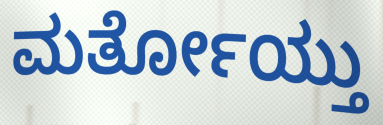
ಮರ್ತೋಯ್ತು